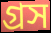
গ্রস